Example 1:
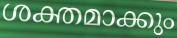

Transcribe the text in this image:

ശക്തമാക്കും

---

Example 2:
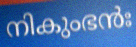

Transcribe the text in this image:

നികുംഭൻഃ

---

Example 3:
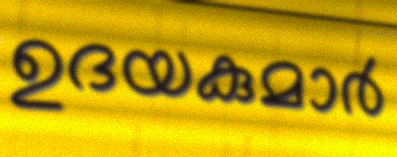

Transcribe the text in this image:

ഉദയകുമാർ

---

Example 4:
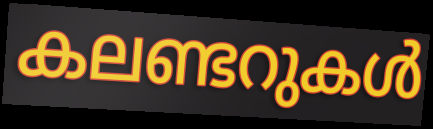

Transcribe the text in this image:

കലണ്ടറുകൾ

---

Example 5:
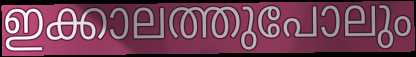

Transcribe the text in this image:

ഇക്കാലത്തുപോലും